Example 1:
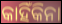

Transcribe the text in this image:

କାହିଁକିନା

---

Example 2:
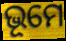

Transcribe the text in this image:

ଭୂମେ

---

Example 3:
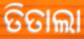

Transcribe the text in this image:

ତିତାଲା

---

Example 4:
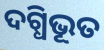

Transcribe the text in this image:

ଦଗ୍ଧିଭୂତ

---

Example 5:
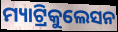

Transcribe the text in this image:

ମ୍ୟାଟ୍ରିକୁଲେସନ